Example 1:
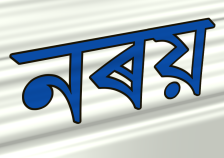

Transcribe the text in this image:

নৰয়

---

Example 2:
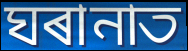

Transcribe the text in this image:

ঘৰানাত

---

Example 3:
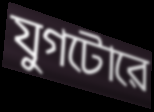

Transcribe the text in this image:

যুগটোৱে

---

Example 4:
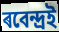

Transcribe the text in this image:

ৰবেন্দ্ৰই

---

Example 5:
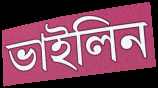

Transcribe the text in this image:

ভাইলিন